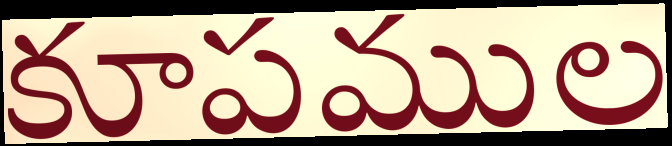
కూపముల